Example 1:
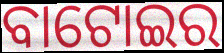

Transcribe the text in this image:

ବାଟୋଇର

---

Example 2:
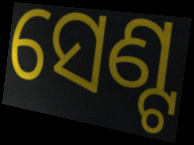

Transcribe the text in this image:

ସେଣ୍ଟ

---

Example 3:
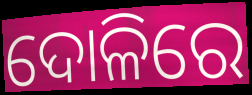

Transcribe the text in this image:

ଦୋଳିରେ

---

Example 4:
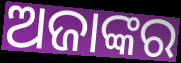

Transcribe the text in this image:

ଅଜାଙ୍କର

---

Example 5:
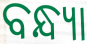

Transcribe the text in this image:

ବନ୍ଧ୍ୟା